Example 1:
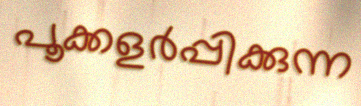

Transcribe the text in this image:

പൂക്കളർപ്പിക്കുന്ന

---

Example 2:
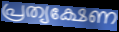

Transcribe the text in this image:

പ്രത്യക്ഷേണ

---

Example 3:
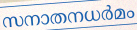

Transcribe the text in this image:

സനാതനധർമം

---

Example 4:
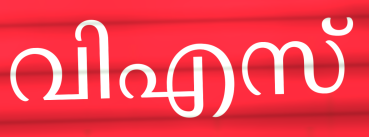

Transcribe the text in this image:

വിഎസ്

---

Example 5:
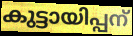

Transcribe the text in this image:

കുട്ടായിപ്പന്